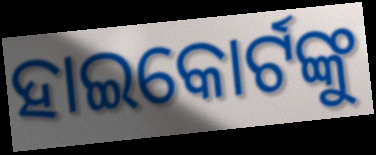
ହାଇକୋର୍ଟଙ୍କୁ